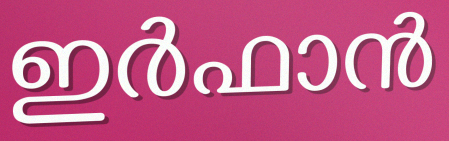
ഇർഫാൻ